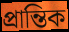
প্রান্তিক